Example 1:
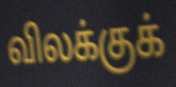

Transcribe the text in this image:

விலக்குக்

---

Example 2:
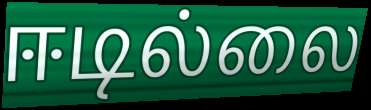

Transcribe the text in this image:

ஈடில்லை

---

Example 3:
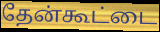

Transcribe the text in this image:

தேன்கூட்டை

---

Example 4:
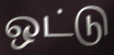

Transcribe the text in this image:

ஒட்டு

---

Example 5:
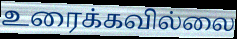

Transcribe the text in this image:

உரைக்கவில்லை